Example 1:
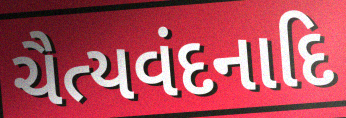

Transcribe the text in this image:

ચૈત્યવંદનાદિ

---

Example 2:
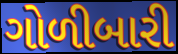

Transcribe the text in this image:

ગોળીબારી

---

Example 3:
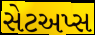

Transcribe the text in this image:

સેટઅપ્સ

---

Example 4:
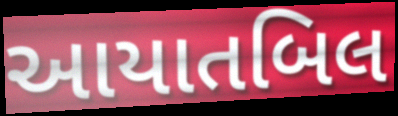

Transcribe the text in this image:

આયાતબિલ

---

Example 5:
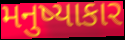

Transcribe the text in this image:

મનુષ્યાકાર